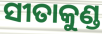
ସୀତାକୁଣ୍ଡ